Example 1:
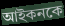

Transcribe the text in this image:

আইকনকে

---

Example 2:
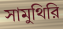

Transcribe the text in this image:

সামুথিরি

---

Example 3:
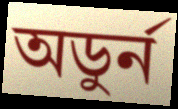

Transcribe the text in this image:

অডুর্ন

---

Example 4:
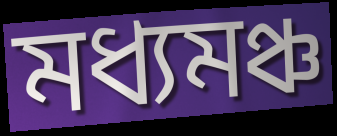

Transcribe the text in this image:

মধ্যমঞ্চ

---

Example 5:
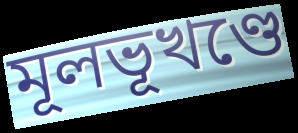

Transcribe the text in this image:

মূলভূখণ্ডে